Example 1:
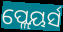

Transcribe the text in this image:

ପ୍ଲେୟର୍ସ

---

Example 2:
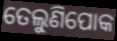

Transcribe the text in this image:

ତେଲୁଣିପୋକ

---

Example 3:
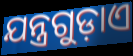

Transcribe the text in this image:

ଯନ୍ତ୍ରଗୁଡ଼ାଏ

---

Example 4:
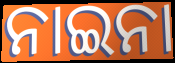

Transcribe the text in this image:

ନାଇନା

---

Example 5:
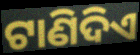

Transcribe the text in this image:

ଟାଣିଦିଏ